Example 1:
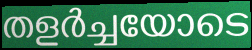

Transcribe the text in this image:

തളർച്ചയോടെ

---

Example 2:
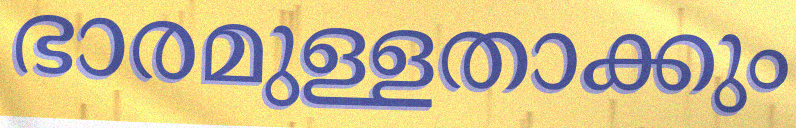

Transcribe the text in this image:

ഭാരമുള്ളതാക്കും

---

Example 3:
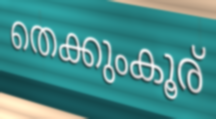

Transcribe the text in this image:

തെക്കുംകൂര്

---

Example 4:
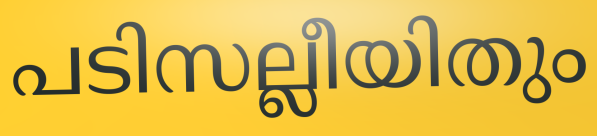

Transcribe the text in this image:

പടിസല്ലീയിതും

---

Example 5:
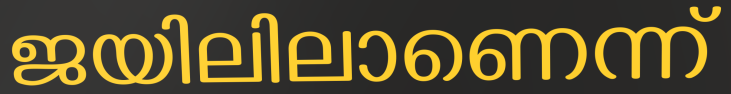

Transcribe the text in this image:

ജയിലിലാണെന്ന്